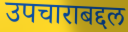
उपचाराबद्दल